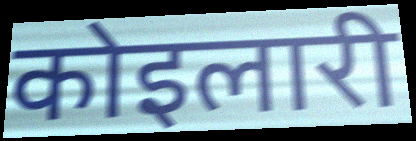
कोइलारी